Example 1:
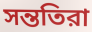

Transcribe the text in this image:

সন্ততিরা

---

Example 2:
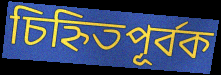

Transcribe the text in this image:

চিহ্নিতপূর্বক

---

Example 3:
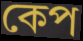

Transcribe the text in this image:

কেপ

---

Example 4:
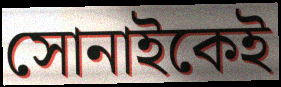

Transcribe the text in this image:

সোনাইকেই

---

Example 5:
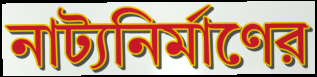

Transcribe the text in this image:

নাট্যনির্মাণের